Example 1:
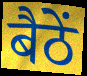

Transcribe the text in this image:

बैठें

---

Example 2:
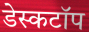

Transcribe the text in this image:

डेस्कटॉप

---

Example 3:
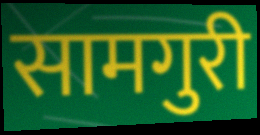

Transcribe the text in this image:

सामगुरी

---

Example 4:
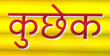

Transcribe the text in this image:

कुछेक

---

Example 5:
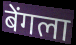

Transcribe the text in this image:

बेंगला